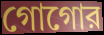
গোগোর